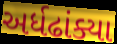
અર્ધઢાંક્યા